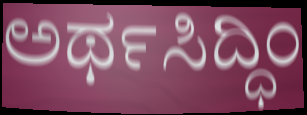
ಅರ್ಥಸಿದ್ಧಿಂ